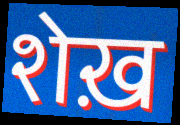
शेख़